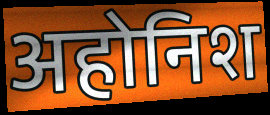
अहोनिश